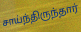
சாய்ந்திருந்தார்